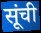
सूंची